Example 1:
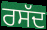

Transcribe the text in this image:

ਰਸੱਦ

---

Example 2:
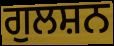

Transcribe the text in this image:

ਗੁਲਸ਼ਨ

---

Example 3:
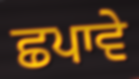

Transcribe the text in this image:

ਛਪਾਵੇ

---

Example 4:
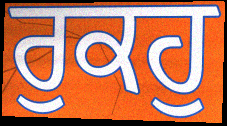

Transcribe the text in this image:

ਰੁਕਹੁ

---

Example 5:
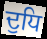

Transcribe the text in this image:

ਦੁਧਿ